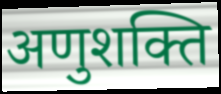
अणुशक्ति